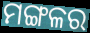
ମଙ୍ଗଳର